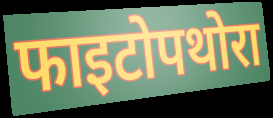
फाइटोपथोरा